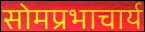
सोमप्रभाचार्य